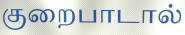
குறைபாடால்